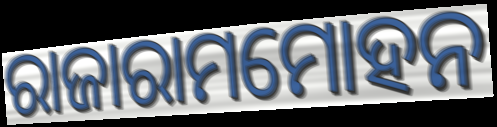
ରାଜାରାମମୋହନ